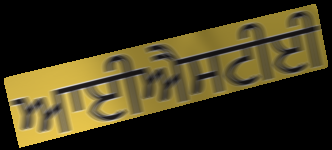
ਆਈਐਸਟੀਈ